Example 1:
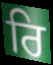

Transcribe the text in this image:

ਰਿ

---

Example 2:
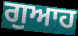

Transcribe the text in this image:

ਗੁਆਹ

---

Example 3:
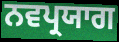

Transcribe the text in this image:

ਨਵਪ੍ਰਯਾਗ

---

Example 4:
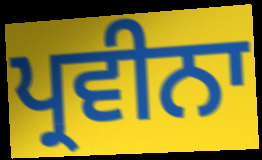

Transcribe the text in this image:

ਪ੍ਰਵੀਨਾ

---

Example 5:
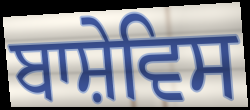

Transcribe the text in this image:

ਬਾਸ਼ੇਵਿਸ